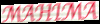
MAHIMA